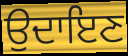
ਉਦਾਇਣ